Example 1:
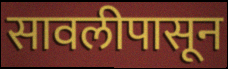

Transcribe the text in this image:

सावलीपासून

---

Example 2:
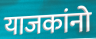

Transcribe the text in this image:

याजकांनो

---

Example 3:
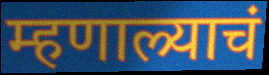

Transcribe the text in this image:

म्हणाल्याचं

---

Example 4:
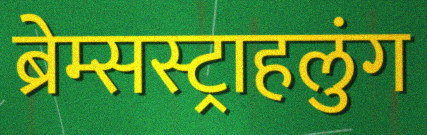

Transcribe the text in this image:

ब्रेम्सस्ट्राहलुंग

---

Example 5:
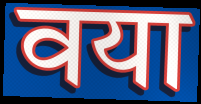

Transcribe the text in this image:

वया